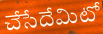
చేసేదేమిటో